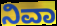
ನಿವಾ